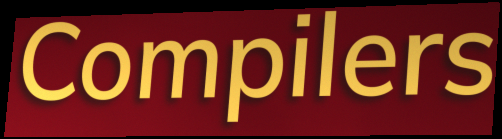
Compilers